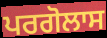
ਪਰਗੋਲਾਸ